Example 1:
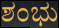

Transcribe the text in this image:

ಶಂಭು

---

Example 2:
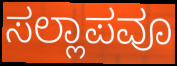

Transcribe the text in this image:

ಸಲ್ಲಾಪವೂ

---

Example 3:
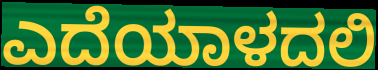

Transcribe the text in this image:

ಎದೆಯಾಳದಲಿ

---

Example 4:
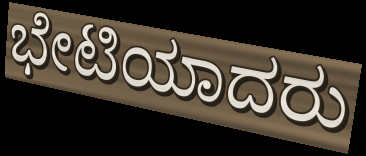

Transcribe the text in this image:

ಭೇಟಿಯಾದರು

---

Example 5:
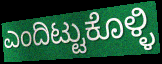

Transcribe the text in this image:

ಎಂದಿಟ್ಟುಕೊಳ್ಳಿ